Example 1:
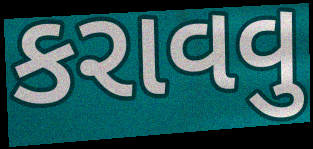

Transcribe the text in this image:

કરાવવુ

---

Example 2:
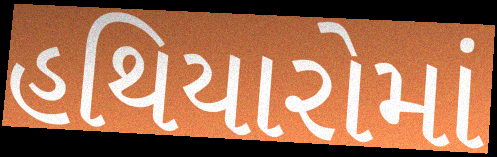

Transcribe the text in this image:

હથિયારોમાં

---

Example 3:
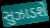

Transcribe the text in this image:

સુઝાડશે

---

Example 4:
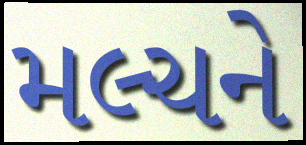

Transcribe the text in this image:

મલ્ચને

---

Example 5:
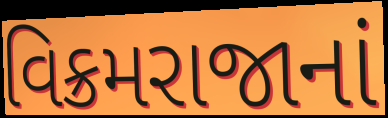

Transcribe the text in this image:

વિક્રમરાજાનાં